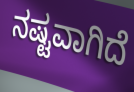
ನಷ್ಟವಾಗಿದೆ